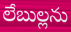
లేబుల్లను